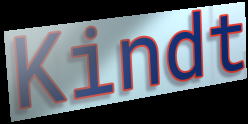
Kindt